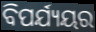
ବିପର୍ଯ୍ଯୟର